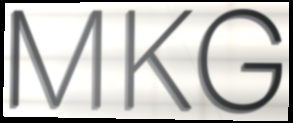
MKG